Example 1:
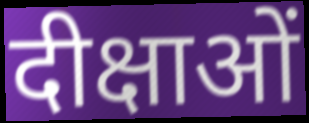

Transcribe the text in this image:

दीक्षाओं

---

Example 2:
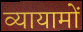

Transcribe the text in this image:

व्यायामों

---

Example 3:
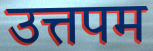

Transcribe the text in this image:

उत्तपम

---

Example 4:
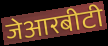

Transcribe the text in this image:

जेआरबीटी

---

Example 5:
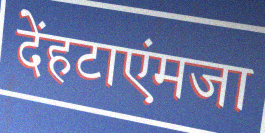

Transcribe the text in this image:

देंहटाएंमजा